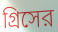
গ্রিসের